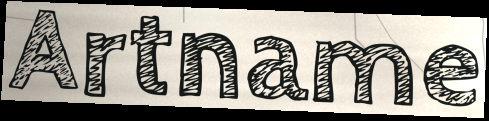
Artname